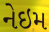
નેઇમ